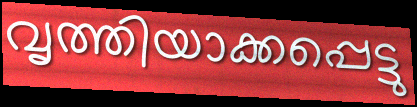
വൃത്തിയാക്കപ്പെട്ടു